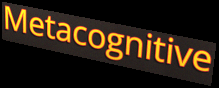
Metacognitive